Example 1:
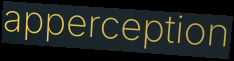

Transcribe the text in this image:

apperception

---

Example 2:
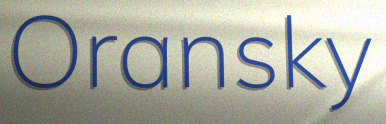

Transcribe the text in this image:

Oransky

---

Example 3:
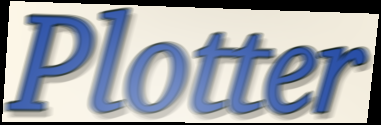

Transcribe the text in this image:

Plotter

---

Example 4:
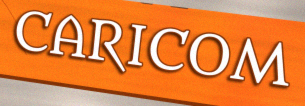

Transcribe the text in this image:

CARICOM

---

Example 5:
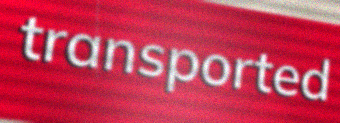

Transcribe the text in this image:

transported